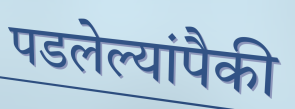
पडलेल्यांपैकी